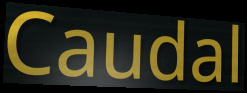
Caudal